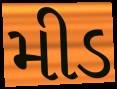
મીડ